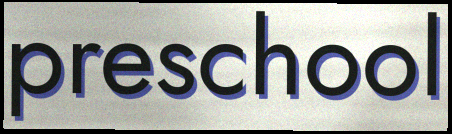
preschool